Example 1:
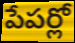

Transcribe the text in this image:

పేపర్లో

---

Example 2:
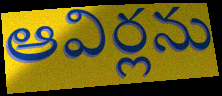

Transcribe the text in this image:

ఆవిర్లను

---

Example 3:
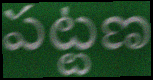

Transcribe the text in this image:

పట్టణ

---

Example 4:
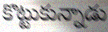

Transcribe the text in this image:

కొట్టుకున్నాడు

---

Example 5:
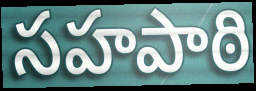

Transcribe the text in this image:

సహపాఠి